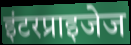
इंटरप्राइजेज